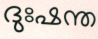
ദുഃഷന്ത